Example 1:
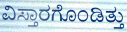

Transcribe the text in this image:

ವಿಸ್ತಾರಗೊಂಡಿತ್ತು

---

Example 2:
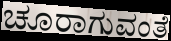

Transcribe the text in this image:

ಚೂರಾಗುವಂತೆ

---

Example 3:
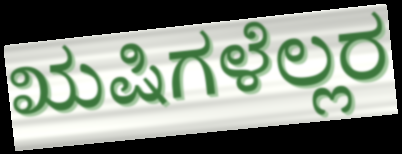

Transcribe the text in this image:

ಋಷಿಗಳೆಲ್ಲರ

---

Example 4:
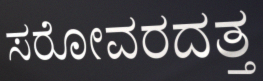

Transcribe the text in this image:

ಸರೋವರದತ್ತ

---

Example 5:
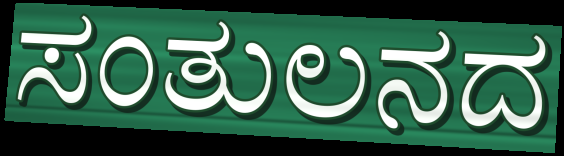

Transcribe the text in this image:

ಸಂತುಲನದ